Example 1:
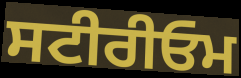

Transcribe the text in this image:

ਸਟੀਰੀਓਮ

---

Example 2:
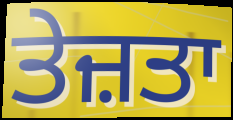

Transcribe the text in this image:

ਤੇਜ਼ਤਾ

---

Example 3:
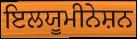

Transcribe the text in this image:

ਇਲਯੂਮੀਨੇਸ਼ਨ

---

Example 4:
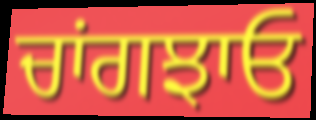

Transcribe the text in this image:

ਚਾਂਗਝਾਓ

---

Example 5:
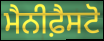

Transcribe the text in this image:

ਮੈਨੀਫ਼ੈਸਟੋ